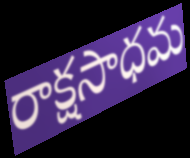
రాక్షసాధమ